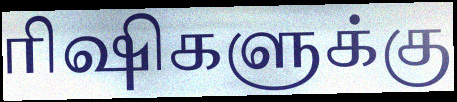
ரிஷிகளுக்கு